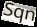
Sqn